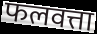
फलवत्ता